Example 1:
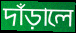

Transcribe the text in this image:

দাঁড়ালে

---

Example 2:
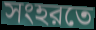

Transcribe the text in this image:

সংহরতে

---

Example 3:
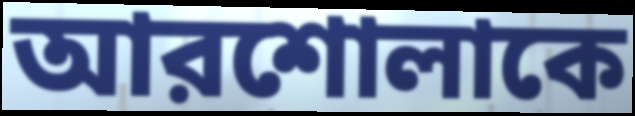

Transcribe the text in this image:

আরশোলাকে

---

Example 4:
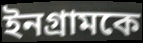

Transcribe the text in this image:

ইনগ্রামকে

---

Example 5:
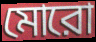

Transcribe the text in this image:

মোরো